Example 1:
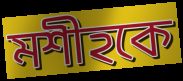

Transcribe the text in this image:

মশীহকে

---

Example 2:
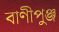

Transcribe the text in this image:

বাণীপুঞ্জ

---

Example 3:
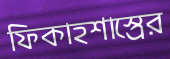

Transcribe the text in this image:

ফিকাহশাস্ত্রের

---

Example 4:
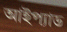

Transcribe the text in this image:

আইপ্যাড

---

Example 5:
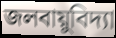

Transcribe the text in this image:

জলবায়ুবিদ্যা